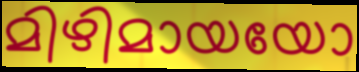
മിഴിമായയോ